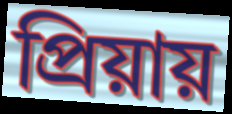
প্রিয়ায়